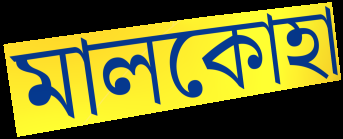
মালকোহা